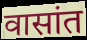
वासांत